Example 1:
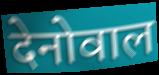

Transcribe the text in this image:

देनोवाल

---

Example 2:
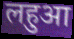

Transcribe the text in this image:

लहुआ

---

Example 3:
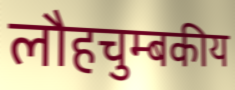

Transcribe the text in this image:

लौहचुम्बकीय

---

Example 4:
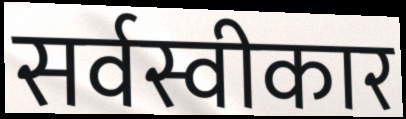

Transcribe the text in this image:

सर्वस्वीकार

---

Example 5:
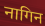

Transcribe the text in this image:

नागिन